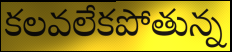
కలవలేకపోతున్న